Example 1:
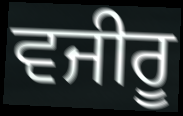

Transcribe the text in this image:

ਵਜੀਰੂ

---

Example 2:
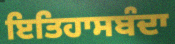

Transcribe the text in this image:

ਇਤਿਹਾਸਬੰਦਾ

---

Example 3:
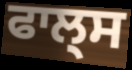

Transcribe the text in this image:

ਫਾਲ੍ਸ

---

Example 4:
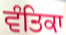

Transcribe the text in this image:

ਵੰਤਿਕਾ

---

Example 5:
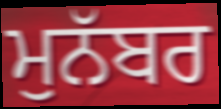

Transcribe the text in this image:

ਮੁਨੱਬਰ